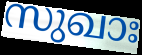
സുഖാഃ